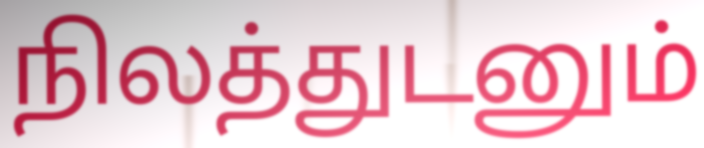
நிலத்துடனும்